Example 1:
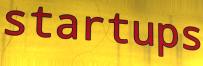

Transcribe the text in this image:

startups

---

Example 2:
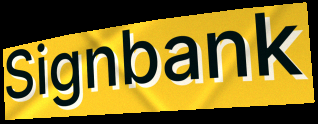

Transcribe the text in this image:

Signbank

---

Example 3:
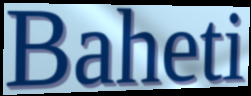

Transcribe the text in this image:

Baheti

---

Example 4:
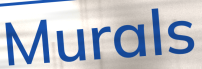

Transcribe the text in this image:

Murals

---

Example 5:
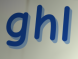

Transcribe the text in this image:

ghl